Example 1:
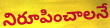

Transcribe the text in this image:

నిరూపించాలనే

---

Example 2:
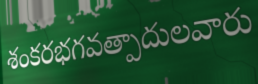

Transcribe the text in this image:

శంకరభగవత్పాదులవారు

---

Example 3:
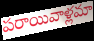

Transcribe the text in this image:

పరాయివాళ్లమా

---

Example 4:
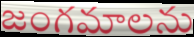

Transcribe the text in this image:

జంగమాలను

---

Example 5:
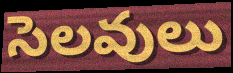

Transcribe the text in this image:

సెలవులు